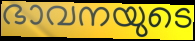
ഭാവനയുടെ